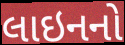
લાઇનનો